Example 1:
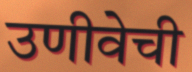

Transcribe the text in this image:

उणीवेची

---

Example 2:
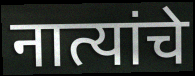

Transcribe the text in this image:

नात्यांचे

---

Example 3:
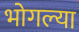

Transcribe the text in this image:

भोगल्या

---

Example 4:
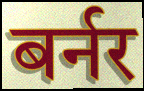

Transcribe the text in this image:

बर्नर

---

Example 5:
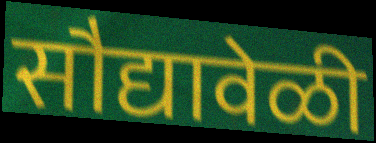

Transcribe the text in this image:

सौद्यावेळी